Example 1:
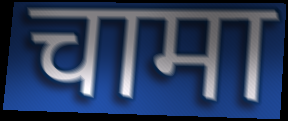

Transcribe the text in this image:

चामा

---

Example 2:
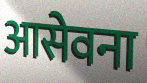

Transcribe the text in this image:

आसेवना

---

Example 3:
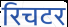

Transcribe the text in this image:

रिचटर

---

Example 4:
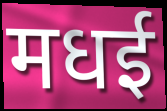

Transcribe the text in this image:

मधई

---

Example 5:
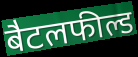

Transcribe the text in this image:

बैटलफील्ड